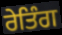
ਰੇਤਿੰਗ